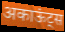
अकाऊंट्स